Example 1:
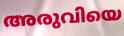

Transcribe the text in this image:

അരുവിയെ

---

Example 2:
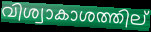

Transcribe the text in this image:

വിശ്വാകാശത്തില്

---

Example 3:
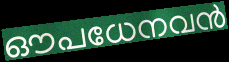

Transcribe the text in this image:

ഔപധേനവൻ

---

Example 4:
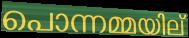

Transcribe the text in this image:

പൊന്നമ്മയില്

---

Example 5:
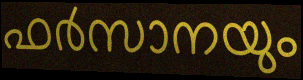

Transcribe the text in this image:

ഫർസാനയും